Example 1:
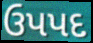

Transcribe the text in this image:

ઉપપદ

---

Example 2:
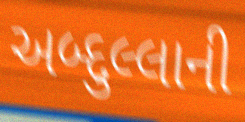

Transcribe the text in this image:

અબ્દુલ્લાની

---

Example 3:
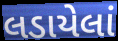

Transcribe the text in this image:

લડાયેલાં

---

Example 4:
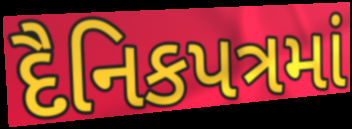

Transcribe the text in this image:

દૈનિકપત્રમાં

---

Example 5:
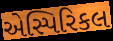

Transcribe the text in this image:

એસ્પિરિકલ